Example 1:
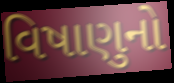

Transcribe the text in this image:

વિષાણુનો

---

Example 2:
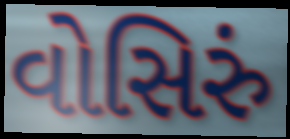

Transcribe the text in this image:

વોસિરું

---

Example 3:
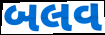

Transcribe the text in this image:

બલવ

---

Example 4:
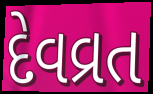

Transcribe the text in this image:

દેવવ્રત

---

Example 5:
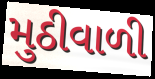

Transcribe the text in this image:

મુઠીવાળી